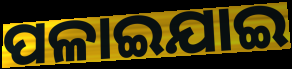
ପଳାଇଯାଇ